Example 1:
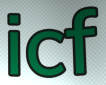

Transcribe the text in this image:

icf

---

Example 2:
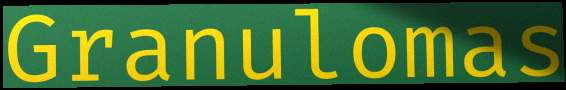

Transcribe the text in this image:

Granulomas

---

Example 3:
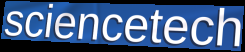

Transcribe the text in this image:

sciencetech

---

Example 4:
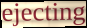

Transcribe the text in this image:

ejecting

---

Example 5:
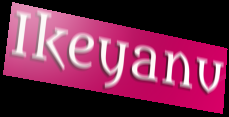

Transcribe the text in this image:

Ikeyanu